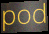
pod